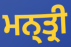
ਮਨ੍ਤ੍ਰੀ